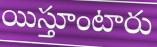
యిస్తూంటారు